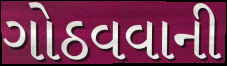
ગોઠવવાની